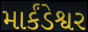
માર્કંડેશ્વર